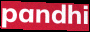
pandhi